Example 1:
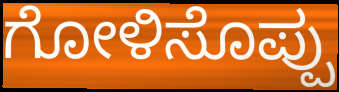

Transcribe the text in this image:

ಗೋಳಿಸೊಪ್ಪು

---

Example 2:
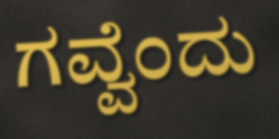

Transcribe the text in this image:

ಗವ್ವೆಂದು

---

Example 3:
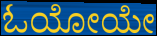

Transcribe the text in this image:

ಓಯೋಯೇ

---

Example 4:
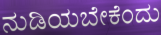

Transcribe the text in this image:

ನುಡಿಯಬೇಕೆಂದು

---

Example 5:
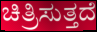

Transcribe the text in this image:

ಚಿತ್ರಿಸುತ್ತದೆ